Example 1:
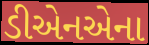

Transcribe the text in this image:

ડીએનએના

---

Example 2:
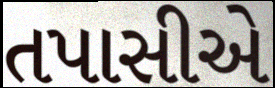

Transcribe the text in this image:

તપાસીએ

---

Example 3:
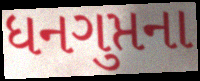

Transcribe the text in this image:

ધનગુપ્તના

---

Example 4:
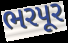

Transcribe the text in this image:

ભરપૂર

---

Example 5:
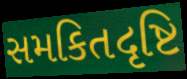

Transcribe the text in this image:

સમકિતદૃષ્ટિ